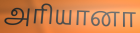
அரியானா